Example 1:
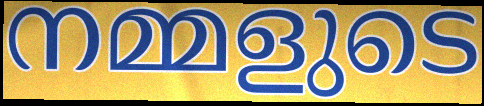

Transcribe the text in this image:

നമ്മളുടെ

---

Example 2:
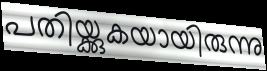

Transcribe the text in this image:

പതിയ്ക്കുകയായിരുന്നു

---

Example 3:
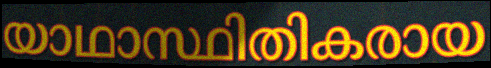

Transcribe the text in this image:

യാഥാസ്ഥിതികരായ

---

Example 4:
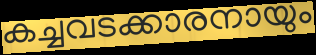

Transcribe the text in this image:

കച്ചവടക്കാരനായും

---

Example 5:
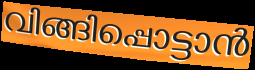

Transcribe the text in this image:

വിങ്ങിപ്പൊട്ടാൻ